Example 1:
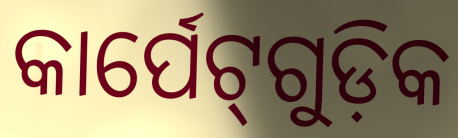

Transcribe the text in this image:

କାର୍ପେଟ୍‌ଗୁଡ଼ିକ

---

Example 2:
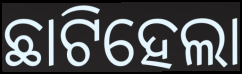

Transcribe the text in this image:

ଛାଟିହେଲା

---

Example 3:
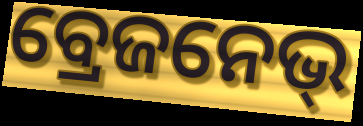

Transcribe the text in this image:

ବ୍ରେଜନେଭ୍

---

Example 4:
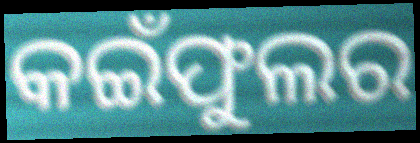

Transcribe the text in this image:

କଇଁଫୁଲର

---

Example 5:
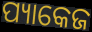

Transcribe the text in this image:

ପ୍ୟାକେଜ